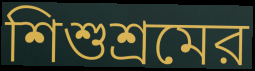
শিশুশ্রমের